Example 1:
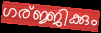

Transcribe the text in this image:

ഗര്ജ്ജിക്കും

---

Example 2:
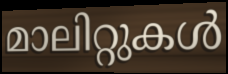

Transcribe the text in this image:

മാലിറ്റുകൾ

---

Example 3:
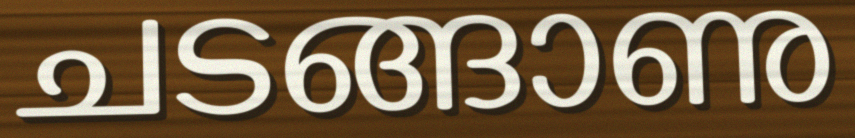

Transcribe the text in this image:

ചടങ്ങാണു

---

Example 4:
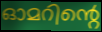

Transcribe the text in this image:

ഓമറിന്റെ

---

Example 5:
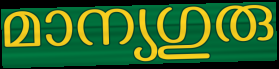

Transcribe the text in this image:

മാന്യഗുരു